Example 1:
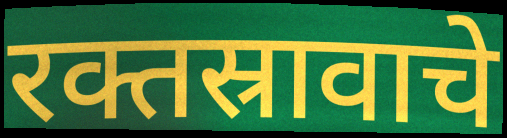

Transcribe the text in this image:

रक्तस्रावाचे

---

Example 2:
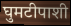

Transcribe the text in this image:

घुमटीपाशी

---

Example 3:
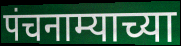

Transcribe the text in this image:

पंचनाम्याच्या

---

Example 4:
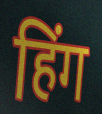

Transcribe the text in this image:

हिंग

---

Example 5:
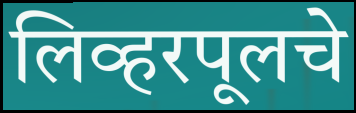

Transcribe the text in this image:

लिव्हरपूलचे